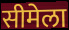
सीमेला